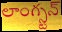
లాంగ్స్టన్